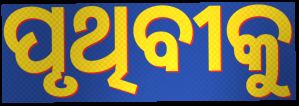
ପୃଥିବୀକୁ